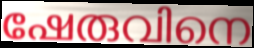
ഷേരുവിനെ